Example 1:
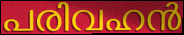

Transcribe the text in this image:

പരിവഹൻ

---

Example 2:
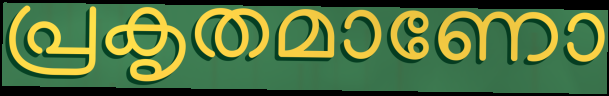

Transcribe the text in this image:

പ്രകൃതമാണോ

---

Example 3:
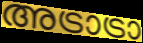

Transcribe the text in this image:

അട്രാട്രാ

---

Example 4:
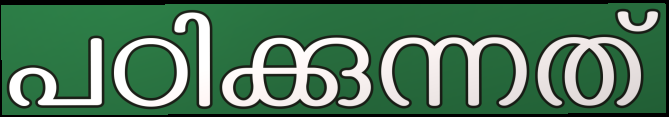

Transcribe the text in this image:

പഠിക്കുന്നത്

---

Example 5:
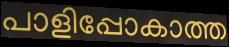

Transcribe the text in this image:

പാളിപ്പോകാത്ത